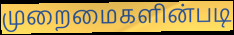
முறைமைகளின்படி